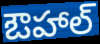
ఔహాల్